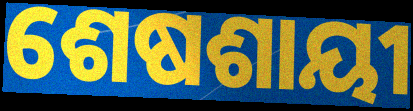
ଶେଷଶାୟୀ